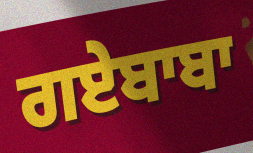
ਗਏਬਾਬਾ